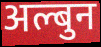
अल्बुन